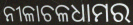
ନୀଳାଚଳଧାମର